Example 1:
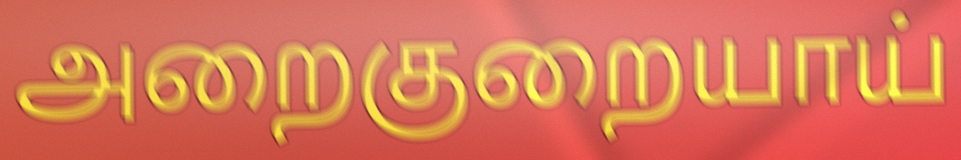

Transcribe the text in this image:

அறைகுறையாய்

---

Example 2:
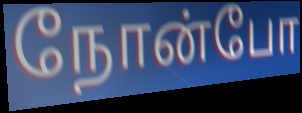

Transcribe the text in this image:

நோன்போ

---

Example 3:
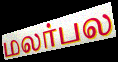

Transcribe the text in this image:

மலர்பல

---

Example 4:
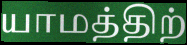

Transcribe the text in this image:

யாமத்திற்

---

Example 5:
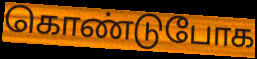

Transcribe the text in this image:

கொண்டுபோக